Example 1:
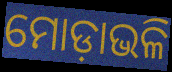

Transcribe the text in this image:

ମୋଡ଼ାଭଳି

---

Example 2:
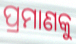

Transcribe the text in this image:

ପ୍ରମାଣକୁ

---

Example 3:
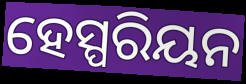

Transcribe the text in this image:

ହେସ୍ପରିୟନ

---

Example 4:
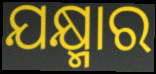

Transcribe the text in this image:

ଯକ୍ଷ୍ମାର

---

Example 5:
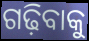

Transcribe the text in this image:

ଗଢ଼ିବାକୁ